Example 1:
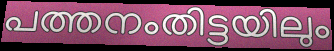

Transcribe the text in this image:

പത്തനംതിട്ടയിലും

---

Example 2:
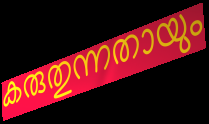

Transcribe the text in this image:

കരുതുന്നതായും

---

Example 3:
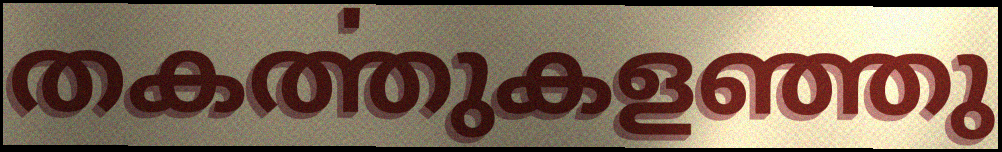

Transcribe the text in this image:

തകൎത്തുകളഞ്ഞു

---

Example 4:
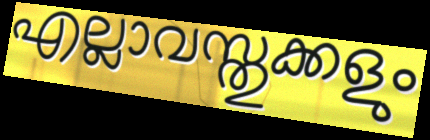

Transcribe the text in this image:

എല്ലാവസ്തുക്കളും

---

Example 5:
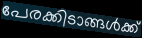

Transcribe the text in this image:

പേരക്കിടാങ്ങൾക്ക്